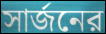
সার্জনের